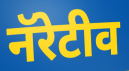
नॅरेटीव